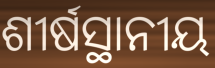
ଶୀର୍ଷସ୍ଥାନୀୟ